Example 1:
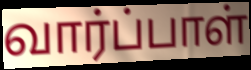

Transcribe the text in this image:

வார்ப்பாள்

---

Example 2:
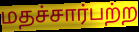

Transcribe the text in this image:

மதச்சார்பற்ற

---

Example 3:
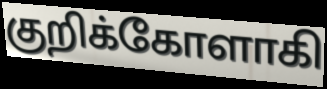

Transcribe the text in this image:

குறிக்கோளாகி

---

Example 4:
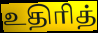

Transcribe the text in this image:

உதிரித்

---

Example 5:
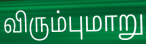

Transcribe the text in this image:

விரும்புமாறு